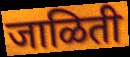
जाळिती